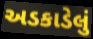
અડકાડેલું